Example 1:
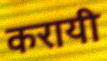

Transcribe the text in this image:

करायी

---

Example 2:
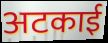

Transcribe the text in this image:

अटकाई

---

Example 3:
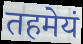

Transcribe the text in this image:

तहमेयं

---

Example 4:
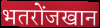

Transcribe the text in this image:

भतरोंजखान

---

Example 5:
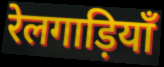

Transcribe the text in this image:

रेलगाड़ियाँ